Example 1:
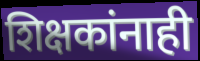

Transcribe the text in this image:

शिक्षकांनाही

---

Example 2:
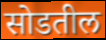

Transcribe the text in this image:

सोडतील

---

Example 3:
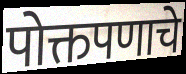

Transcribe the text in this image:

पोक्तपणाचे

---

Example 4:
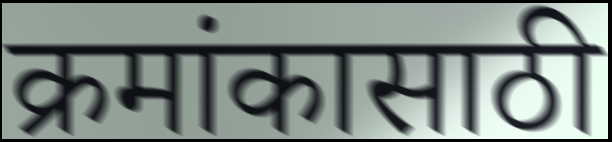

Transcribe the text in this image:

क्रमांकासाठी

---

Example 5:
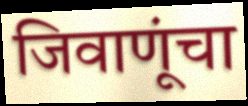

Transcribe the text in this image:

जिवाणूंचा